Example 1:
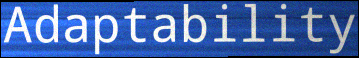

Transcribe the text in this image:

Adaptability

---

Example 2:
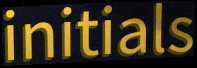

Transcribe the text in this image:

initials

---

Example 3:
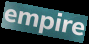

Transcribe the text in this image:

empire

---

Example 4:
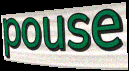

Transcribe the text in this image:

pouse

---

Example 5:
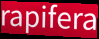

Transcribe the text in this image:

rapifera